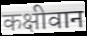
कक्षीवान